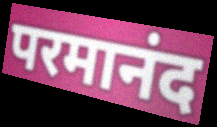
परमानंद